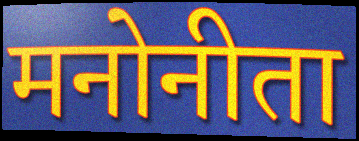
मनोनीता